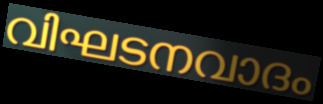
വിഘടനവാദം